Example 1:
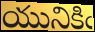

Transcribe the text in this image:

యునికిఁ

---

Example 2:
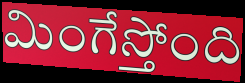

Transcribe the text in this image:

మింగేస్తోంది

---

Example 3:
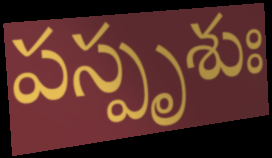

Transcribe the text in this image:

పస్పృశుః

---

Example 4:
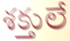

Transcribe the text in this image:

శక్తులే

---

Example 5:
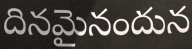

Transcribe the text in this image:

దినమైనందున